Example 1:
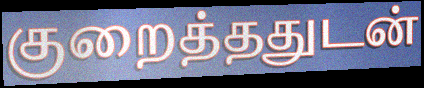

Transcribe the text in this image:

குறைத்ததுடன்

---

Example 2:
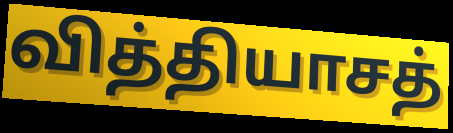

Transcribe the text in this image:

வித்தியாசத்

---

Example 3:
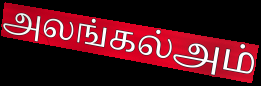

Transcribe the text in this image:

அலங்கல்அம்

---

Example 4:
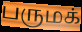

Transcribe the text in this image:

பருமக்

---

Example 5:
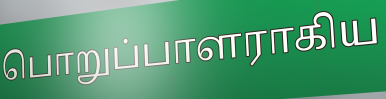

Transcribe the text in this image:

பொறுப்பாளராகிய